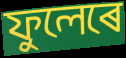
ফুলেৰে